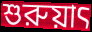
শুরুয়াৎ